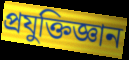
প্রযুক্তিজ্ঞান